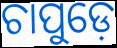
ଚାପୁଡ଼େ